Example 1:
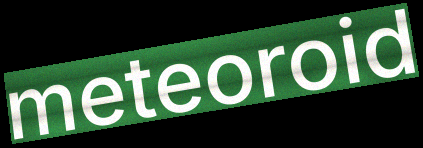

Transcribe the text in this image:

meteoroid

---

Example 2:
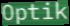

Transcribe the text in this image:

Optik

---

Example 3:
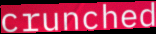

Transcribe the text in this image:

crunched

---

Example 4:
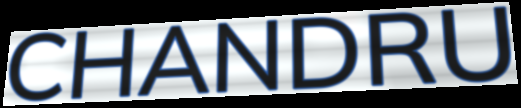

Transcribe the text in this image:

CHANDRU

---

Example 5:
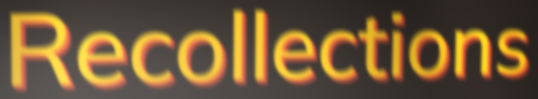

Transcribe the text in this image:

Recollections